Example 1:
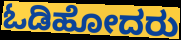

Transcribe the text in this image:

ಓಡಿಹೋದರು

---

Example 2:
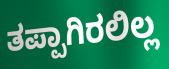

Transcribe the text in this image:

ತಪ್ಪಾಗಿರಲಿಲ್ಲ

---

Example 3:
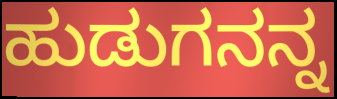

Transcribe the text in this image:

ಹುಡುಗನನ್ನ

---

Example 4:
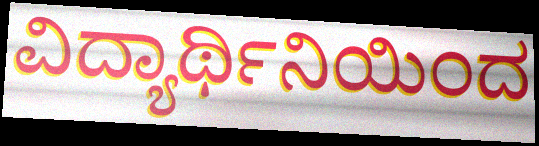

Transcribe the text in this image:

ವಿದ್ಯಾರ್ಥಿನಿಯಿಂದ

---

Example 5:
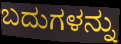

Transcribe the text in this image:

ಬದುಗಳನ್ನು